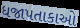
ધજાપતાકાઓ